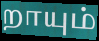
றாயும்